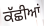
ਕੱਛੀਆਂ